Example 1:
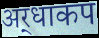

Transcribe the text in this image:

अर्धाकप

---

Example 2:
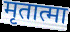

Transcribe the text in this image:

मृतात्मा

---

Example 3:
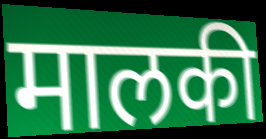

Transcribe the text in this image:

मालकी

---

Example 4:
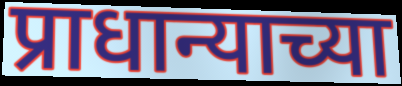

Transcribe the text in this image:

प्राधान्याच्या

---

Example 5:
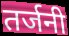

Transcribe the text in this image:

तर्जनी